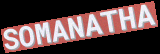
SOMANATHA